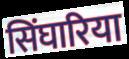
सिंघारिया